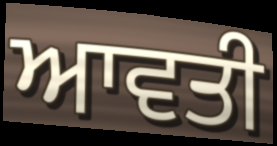
ਆਵਤੀ